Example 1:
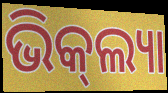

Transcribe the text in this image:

ଭିକ୍‌ଲ୍ୟା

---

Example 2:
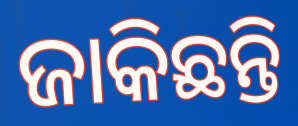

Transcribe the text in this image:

ଜାକିଛନ୍ତି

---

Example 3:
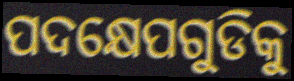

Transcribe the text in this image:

ପଦକ୍ଷେପଗୁଡିକୁ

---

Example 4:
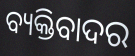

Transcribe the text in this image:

ବ୍ୟକ୍ତିବାଦର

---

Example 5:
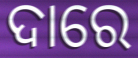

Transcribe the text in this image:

ଦାରେ